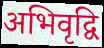
अभिवृद्वि